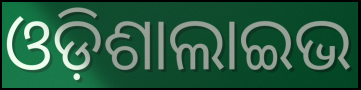
ଓଡ଼ିଶାଲାଇଭ